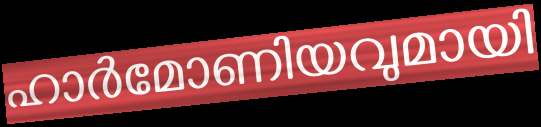
ഹാർമോണിയവുമായി